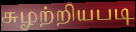
சுழற்றியபடி